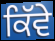
ਕਿੱਵੇ